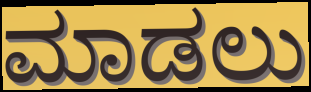
ಮಾಡಲು